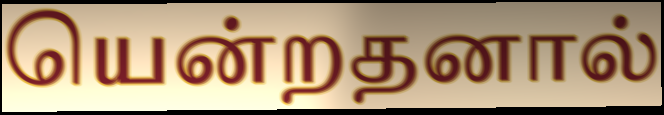
யென்றதனால்